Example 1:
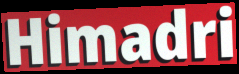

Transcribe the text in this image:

Himadri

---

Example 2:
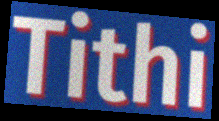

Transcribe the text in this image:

Tithi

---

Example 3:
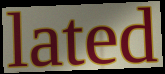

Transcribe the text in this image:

lated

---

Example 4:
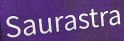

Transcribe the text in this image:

Saurastra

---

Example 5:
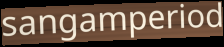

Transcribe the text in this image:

sangamperiod